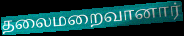
தலைமறைவானார்